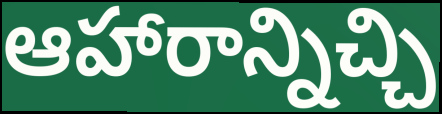
ఆహారాన్నిచ్చి